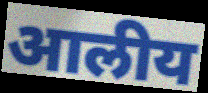
आलीय